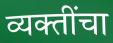
व्यक्‍तींचा